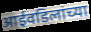
आईवडिलांच्या